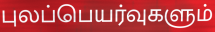
புலப்பெயர்வுகளும்